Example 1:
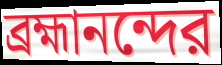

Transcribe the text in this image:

ব্রহ্মানন্দের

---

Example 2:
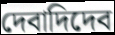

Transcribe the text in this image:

দেবাদিদেব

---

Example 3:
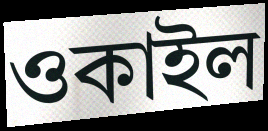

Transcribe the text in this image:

ওকাইল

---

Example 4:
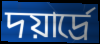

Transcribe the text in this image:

দয়ার্দ্রে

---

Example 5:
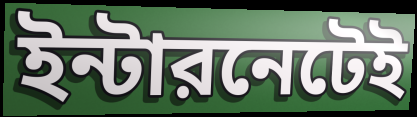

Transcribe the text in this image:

ইন্টারনেটেই